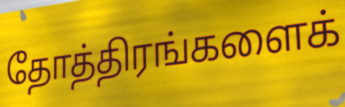
தோத்திரங்களைக்